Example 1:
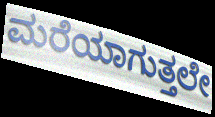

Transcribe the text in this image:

ಮರೆಯಾಗುತ್ತಲೇ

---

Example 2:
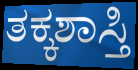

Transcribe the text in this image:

ತಕ್ಕಶಾಸ್ತಿ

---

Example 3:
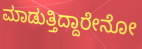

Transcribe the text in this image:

ಮಾಡುತ್ತಿದ್ದಾರೇನೋ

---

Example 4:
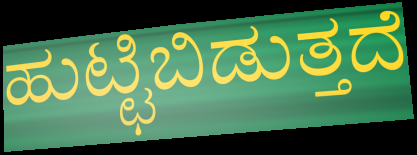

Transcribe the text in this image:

ಹುಟ್ಟಿಬಿಡುತ್ತದೆ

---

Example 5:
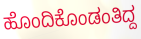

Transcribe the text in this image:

ಹೊಂದಿಕೊಂಡಂತಿದ್ದ